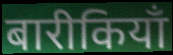
बारीकियाँ